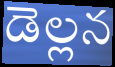
డెల్లన